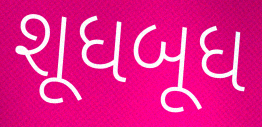
શૂધબૂધ